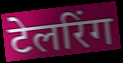
टेलरिंग